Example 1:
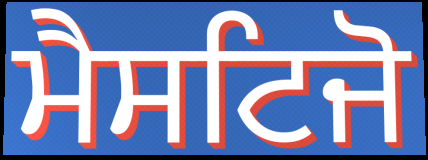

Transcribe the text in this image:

ਮੈਸਟਿਜੋ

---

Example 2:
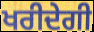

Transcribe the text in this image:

ਖਰੀਦੇਗੀ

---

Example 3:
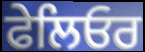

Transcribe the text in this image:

ਫੇਲਿਓਰ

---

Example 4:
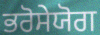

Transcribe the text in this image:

ਭਰੋਸੇਯੋਗ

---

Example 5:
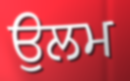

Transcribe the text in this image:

ਉਲਮ